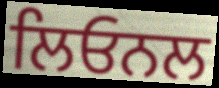
ਲਿਓਨਲ